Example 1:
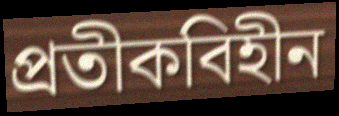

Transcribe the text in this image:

প্রতীকবিহীন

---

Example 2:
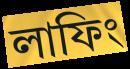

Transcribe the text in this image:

লাফিং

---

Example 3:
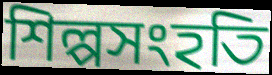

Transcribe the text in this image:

শিল্পসংহতি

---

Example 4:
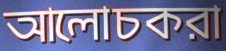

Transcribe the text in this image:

আলোচকরা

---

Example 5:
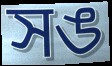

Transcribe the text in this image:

সঙ